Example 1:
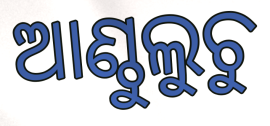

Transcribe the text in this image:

ଆଣ୍ଠୁଲୁଚୁ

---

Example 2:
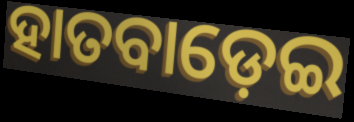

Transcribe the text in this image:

ହାତବାଡ଼େଇ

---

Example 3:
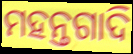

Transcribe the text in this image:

ମହନ୍ତଗାଦି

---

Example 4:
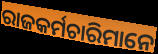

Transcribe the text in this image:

ରାଜକର୍ମଚାରିମାନେ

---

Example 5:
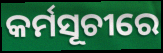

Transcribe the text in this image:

କର୍ମସୂଚୀରେ